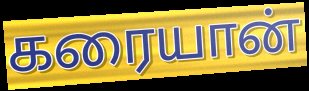
கரையான்